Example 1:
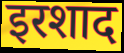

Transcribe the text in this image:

इरशाद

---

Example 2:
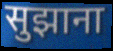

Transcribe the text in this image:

सुझाना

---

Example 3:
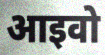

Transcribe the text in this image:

आइवो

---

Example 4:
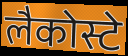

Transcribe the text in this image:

लैकोस्टे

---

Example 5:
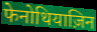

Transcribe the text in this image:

फेनोथियाज़िन